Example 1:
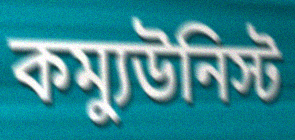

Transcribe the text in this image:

কম্যুউনিস্ট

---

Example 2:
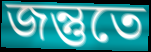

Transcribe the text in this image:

জন্তুতে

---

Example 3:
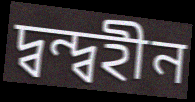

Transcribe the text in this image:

দ্বন্দ্বহীন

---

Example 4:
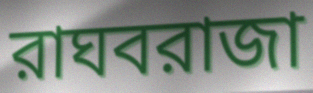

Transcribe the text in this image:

রাঘবরাজা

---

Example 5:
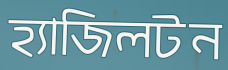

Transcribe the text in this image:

হ্যাজিলটন